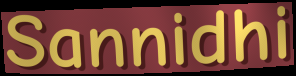
Sannidhi